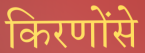
किरणोंसे